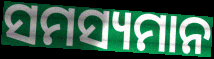
ସମସ୍ୟମାନ